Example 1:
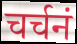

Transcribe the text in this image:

चर्चनं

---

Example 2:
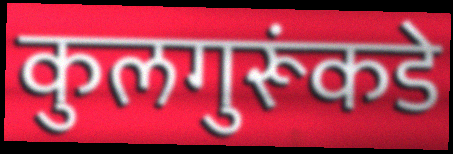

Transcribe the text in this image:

कुलगुरूंकडे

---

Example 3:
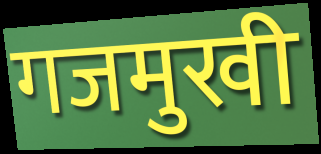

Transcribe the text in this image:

गजमुखी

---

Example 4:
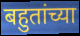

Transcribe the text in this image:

बहुतांच्या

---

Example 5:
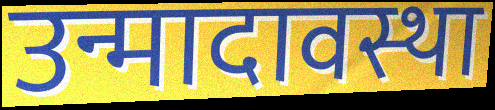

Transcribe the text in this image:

उन्मादावस्था